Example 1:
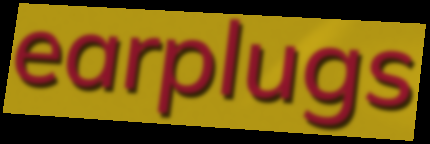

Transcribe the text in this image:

earplugs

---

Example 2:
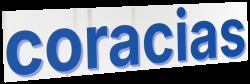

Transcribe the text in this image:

coracias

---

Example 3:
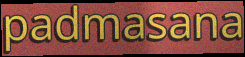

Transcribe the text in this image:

padmasana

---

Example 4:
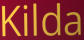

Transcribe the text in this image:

Kilda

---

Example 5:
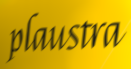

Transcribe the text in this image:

plaustra